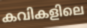
കവികളിലെ